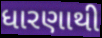
ધારણાથી